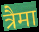
त्रैमा